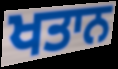
ਖਤਾਨ